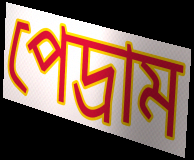
পেদ্রাম